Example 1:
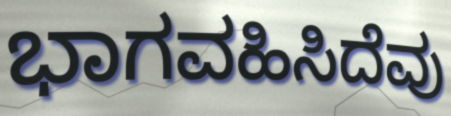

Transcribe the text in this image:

ಭಾಗವಹಿಸಿದೆವು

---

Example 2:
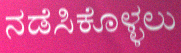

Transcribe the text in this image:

ನಡೆಸಿಕೊಳ್ಳಲು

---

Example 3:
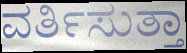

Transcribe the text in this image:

ವರ್ತಿಸುತ್ತಾ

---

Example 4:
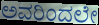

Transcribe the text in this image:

ಅವರಿಂದಲೇ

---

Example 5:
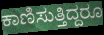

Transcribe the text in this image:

ಕಾಣಿಸುತ್ತಿದ್ದರೂ